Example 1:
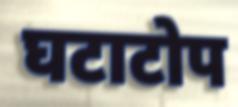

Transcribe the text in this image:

घटाटोप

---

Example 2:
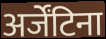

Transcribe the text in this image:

अर्जेंटिना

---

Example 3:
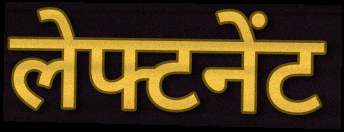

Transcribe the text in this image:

लेफ्टनेंट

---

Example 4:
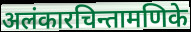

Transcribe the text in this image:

अलंकारचिन्तामणिके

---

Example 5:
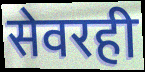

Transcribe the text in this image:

सेवरही